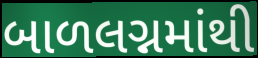
બાળલગ્નમાંથી